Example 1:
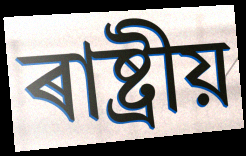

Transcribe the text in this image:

ৰাষ্ট্ৰীয়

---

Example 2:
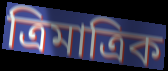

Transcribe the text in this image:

ত্ৰিমাত্ৰিক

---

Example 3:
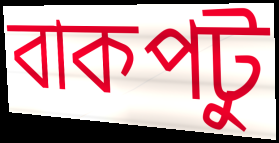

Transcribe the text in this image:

বাকপটু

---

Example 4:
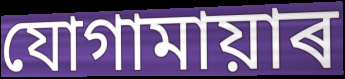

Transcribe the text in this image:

যোগামায়াৰ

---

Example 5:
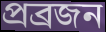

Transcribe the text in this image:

প্ৰব্ৰজন